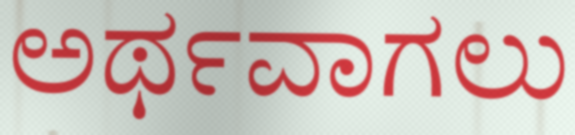
ಅರ್ಥವಾಗಲು